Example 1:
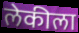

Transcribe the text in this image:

लेकीला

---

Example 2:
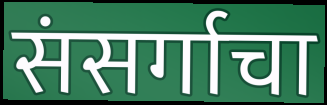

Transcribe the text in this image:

संसर्गाचा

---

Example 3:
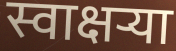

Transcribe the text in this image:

स्वाक्षऱ्या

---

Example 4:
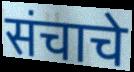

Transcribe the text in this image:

संचाचे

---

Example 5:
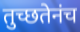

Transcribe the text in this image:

तुच्छतेनंच